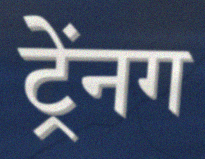
ट्र्रेंनग